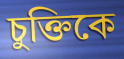
চুক্তিকে